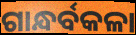
ଗାନ୍ଧର୍ବକଳା